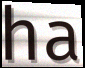
ha